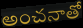
అంచనాతో